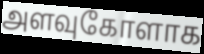
அளவுகோளாக